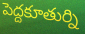
పెద్దకూతుర్ని